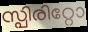
സ്പിരിറ്റോ